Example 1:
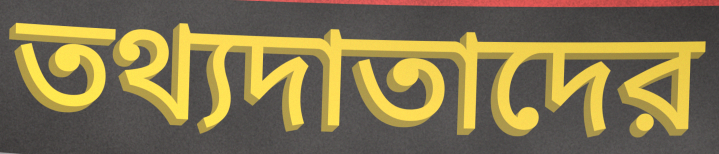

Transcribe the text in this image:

তথ্যদাতাদের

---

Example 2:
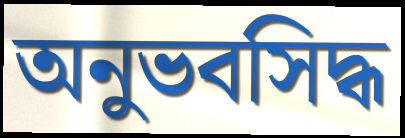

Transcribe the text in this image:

অনুভবসিদ্ধ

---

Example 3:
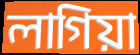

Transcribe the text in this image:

লাগিয়া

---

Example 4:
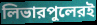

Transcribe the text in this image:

লিভারপুলেরই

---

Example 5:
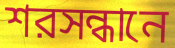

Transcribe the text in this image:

শরসন্ধানে